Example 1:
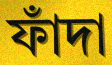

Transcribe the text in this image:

ফাঁদা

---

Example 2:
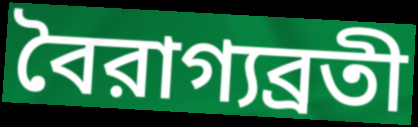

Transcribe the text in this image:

বৈরাগ্যব্রতী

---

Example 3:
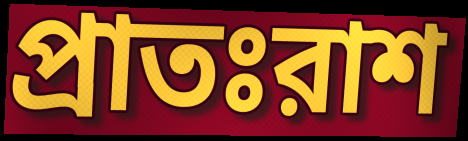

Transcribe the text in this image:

প্রাতঃরাশ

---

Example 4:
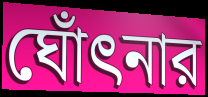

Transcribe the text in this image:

ঘোঁৎনার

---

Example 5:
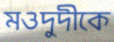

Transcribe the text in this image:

মওদুদীকে